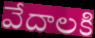
వేదాలకి